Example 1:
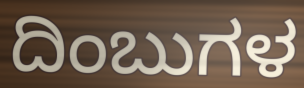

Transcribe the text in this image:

ದಿಂಬುಗಳ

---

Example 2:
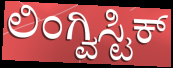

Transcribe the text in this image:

ಲಿಂಗ್ವಿಸ್ಟಿಕ್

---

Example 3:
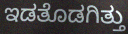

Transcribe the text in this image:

ಇಡತೊಡಗಿತ್ತು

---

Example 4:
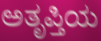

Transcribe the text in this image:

ಅತೃಪ್ತಿಯ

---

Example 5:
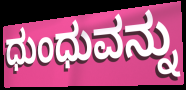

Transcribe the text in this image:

ಧುಂಧುವನ್ನು